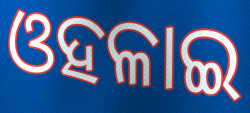
ଓହଳାଇ